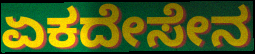
ಏಕದೇಸೇನ